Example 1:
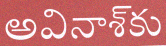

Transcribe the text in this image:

అవినాశ్‌కు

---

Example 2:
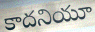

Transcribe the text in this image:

కాదనియూ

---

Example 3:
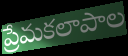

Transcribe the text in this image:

ప్రేమకలాపాల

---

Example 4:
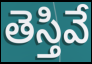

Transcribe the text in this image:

తెస్తివే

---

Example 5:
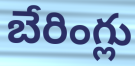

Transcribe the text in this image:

బేరింగ్లు